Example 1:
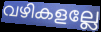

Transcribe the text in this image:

വഴികളല്ലേ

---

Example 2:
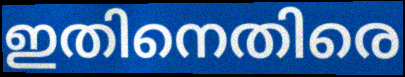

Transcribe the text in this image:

ഇതിനെതിരെ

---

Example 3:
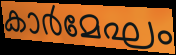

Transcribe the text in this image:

കാർമേഘം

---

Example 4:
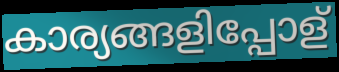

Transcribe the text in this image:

കാര്യങ്ങളിപ്പോള്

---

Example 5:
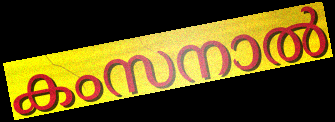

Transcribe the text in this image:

കംസനാൽ